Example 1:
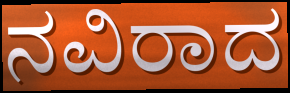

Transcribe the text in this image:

ನವಿರಾದ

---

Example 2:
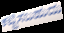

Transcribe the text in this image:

ಕಟ್ಟಿಸಬಹುದು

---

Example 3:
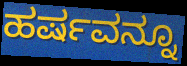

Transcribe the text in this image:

ಹರ್ಷವನ್ನೂ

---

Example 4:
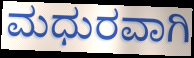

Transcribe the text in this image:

ಮಧುರವಾಗಿ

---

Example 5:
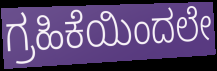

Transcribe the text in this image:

ಗ್ರಹಿಕೆಯಿಂದಲೇ